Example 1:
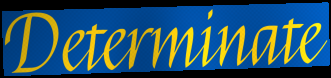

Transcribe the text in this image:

Determinate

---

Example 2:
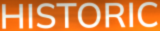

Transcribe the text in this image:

HISTORIC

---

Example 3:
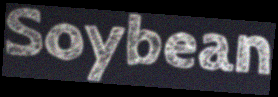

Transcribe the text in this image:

Soybean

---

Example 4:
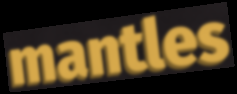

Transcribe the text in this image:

mantles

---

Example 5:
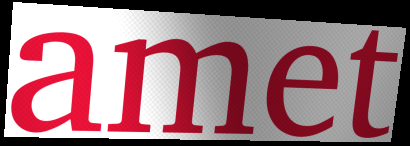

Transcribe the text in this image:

amet